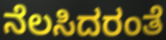
ನೆಲಸಿದರಂತೆ